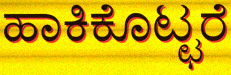
ಹಾಕಿಕೊಟ್ಟರೆ